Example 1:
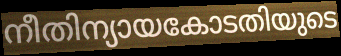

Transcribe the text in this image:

നീതിന്യായകോടതിയുടെ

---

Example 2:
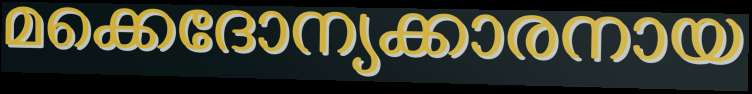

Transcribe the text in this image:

മക്കെദോന്യക്കാരനായ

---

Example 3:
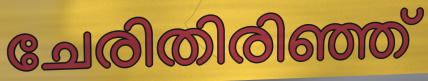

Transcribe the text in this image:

ചേരിതിരിഞ്ഞ്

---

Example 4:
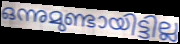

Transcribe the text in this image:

ഒന്നുമുണ്ടായിട്ടില്ല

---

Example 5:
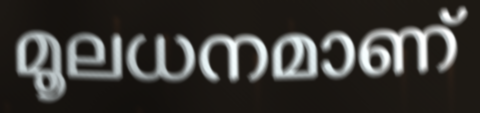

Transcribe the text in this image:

മൂലധനമാണ്